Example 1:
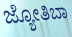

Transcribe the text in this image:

ಜ್ಯೋತಿಬಾ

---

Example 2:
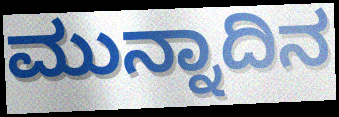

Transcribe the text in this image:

ಮುನ್ನಾದಿನ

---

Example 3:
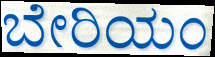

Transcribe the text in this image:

ಬೇರಿಯಂ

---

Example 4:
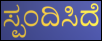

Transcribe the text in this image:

ಸ್ಪಂದಿಸಿದೆ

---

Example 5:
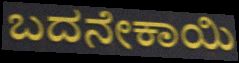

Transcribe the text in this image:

ಬದನೇಕಾಯಿ